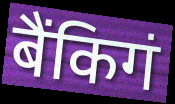
बैंकिगं